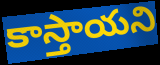
కాస్తాయని